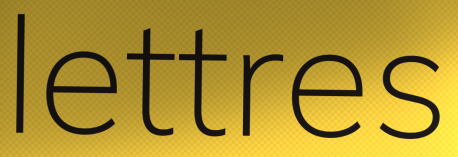
lettres